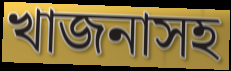
খাজনাসহ